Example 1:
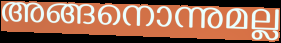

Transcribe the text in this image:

അങ്ങനൊന്നുമല്ല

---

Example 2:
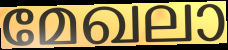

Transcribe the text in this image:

മേഖലാ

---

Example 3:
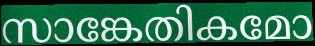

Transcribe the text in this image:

സാങ്കേതികമോ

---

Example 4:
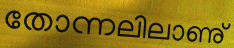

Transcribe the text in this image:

തോന്നലിലാണു്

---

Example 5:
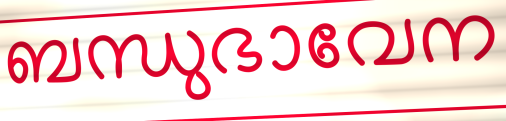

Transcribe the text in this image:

ബന്ധുഭാവേന